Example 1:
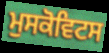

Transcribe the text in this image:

ਮੁਸਕੋਵਿਟਸ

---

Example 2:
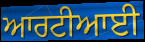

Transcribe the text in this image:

ਆਰਟੀਆਈ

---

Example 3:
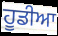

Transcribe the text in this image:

ਹੂਡੀਆ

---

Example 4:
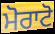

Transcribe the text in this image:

ਮੋਰਾਟੋ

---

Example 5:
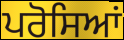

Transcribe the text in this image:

ਪਰੋਸਿਆਂ